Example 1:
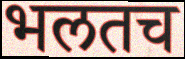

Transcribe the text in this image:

भलतच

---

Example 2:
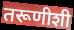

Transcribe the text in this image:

तरूणीशी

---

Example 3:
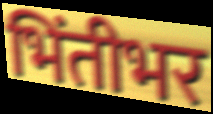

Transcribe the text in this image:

भिंतीभर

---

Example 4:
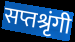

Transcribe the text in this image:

सप्तश्रृंगी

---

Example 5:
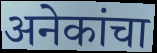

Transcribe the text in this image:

अनेकांचा